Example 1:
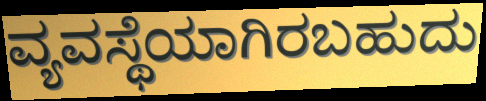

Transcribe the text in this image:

ವ್ಯವಸ್ಥೆಯಾಗಿರಬಹುದು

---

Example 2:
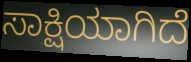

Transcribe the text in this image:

ಸಾಕ್ಷಿಯಾಗಿದೆ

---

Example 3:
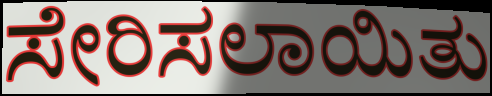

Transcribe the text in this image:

ಸೇರಿಸಲಾಯಿತು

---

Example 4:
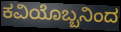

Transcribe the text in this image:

ಕವಿಯೊಬ್ಬನಿಂದ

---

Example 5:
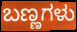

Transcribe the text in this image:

ಬಣ್ಣಗಳು